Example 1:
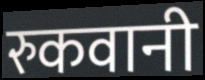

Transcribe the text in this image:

रुकवानी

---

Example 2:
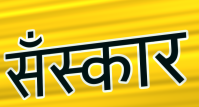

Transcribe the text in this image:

सँस्कार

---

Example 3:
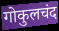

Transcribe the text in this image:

गोकुलचंद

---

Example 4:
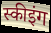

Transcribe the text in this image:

स्कीइंग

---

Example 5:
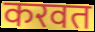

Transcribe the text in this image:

करवत